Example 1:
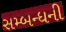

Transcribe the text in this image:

સમ્બન્ધની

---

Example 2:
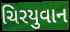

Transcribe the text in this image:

ચિરયુવાન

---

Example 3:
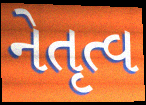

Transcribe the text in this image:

નેતૃત્વ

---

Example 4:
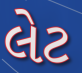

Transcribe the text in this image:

લેટ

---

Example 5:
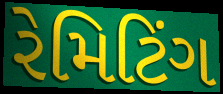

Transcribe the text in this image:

રેમિટિંગ